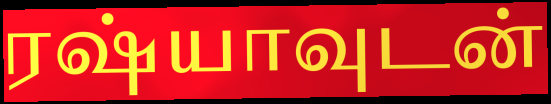
ரஷ்யாவுடன்